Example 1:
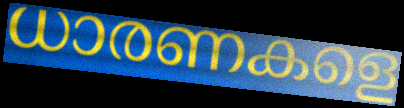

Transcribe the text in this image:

ധാരണകളെ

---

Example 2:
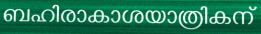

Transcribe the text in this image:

ബഹിരാകാശയാത്രികന്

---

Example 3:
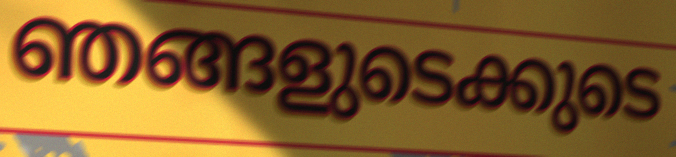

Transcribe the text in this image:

ഞങ്ങളുടെക്കുടെ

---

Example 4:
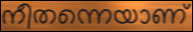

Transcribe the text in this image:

നീതന്നെയാണ്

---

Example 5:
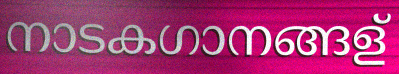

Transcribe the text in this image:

നാടകഗാനങ്ങള്